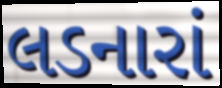
લડનારાં